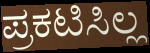
ಪ್ರಕಟಿಸಿಲ್ಲ